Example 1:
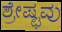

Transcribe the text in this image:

ಶ್ರೇಷ್ಟವು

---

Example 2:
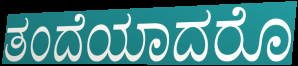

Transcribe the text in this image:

ತಂದೆಯಾದರೊ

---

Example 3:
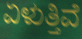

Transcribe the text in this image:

ಏಳುತ್ತಿವೆ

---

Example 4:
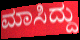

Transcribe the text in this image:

ಮಾಸಿದ್ದು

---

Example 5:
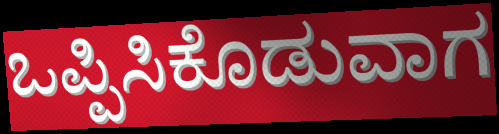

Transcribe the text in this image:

ಒಪ್ಪಿಸಿಕೊಡುವಾಗ